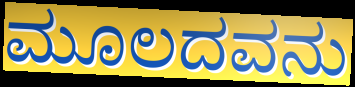
ಮೂಲದವನು